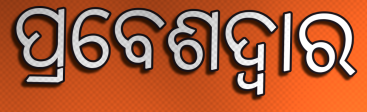
ପ୍ରବେଶଦ୍ଵାର